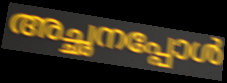
അച്ഛനപ്പോൾ